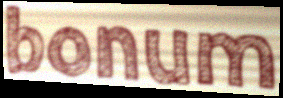
bonum